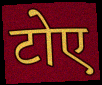
टोए